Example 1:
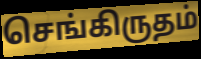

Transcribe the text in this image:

செங்கிருதம்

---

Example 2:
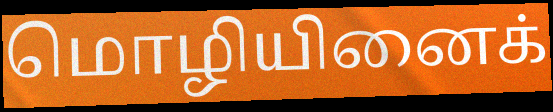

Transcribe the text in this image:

மொழியினைக்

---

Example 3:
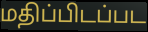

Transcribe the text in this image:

மதிப்பிடப்பட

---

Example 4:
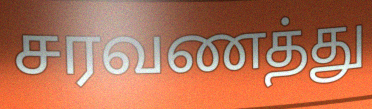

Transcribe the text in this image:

சரவணத்து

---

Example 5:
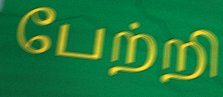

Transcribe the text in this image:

பேற்றி